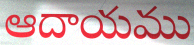
ఆదాయము